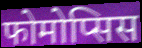
फोमोप्सिस